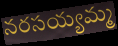
నరసయ్యమ్మ